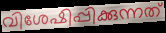
വിശേഷിപ്പിക്കുന്നത്